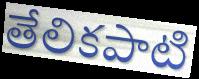
తేలికపాటి